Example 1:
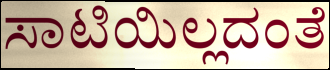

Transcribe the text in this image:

ಸಾಟಿಯಿಲ್ಲದಂತೆ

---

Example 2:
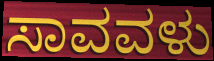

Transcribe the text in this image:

ಸಾವವಳು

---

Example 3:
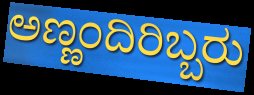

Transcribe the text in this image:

ಅಣ್ಣಂದಿರಿಬ್ಬರು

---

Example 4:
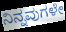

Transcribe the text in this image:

ನಿನ್ನವುಗಳೇ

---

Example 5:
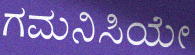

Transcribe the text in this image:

ಗಮನಿಸಿಯೇ